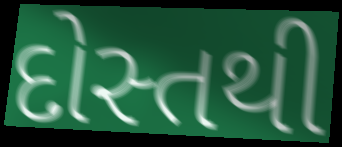
દોસ્તથી